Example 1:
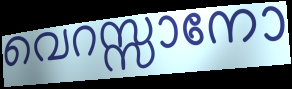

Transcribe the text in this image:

വെറസ്സാനോ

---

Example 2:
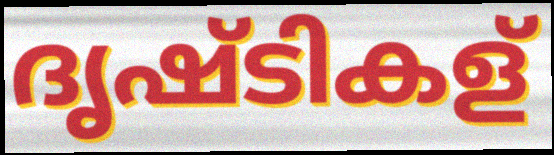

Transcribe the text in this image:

ദൃഷ്ടികള്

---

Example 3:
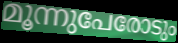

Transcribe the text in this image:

മൂന്നുപേരോടും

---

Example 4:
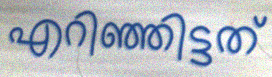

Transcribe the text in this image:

എറിഞ്ഞിട്ടത്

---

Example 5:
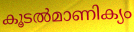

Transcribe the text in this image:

കൂടൽമാണിക്യം